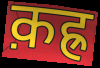
क़ह्र